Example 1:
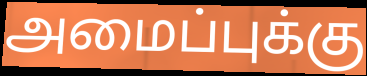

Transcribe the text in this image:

அமைப்புக்கு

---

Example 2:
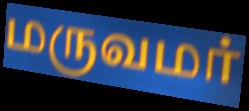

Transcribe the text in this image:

மருவமர்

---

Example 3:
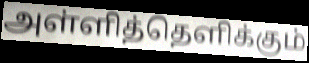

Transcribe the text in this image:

அள்ளித்தெளிக்கும்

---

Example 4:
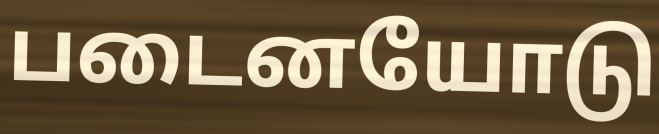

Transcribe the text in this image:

படைனயோடு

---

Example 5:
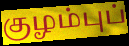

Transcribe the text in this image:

குழம்புப்